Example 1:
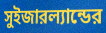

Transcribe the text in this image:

সুইজারল্যান্ডের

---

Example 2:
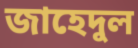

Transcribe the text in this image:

জাহেদুল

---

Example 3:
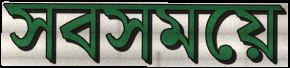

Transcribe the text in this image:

সবসময়ে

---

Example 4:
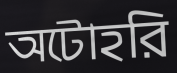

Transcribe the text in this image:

অটোহরি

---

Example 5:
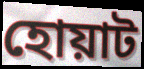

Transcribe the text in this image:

হোয়াট